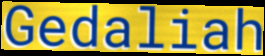
Gedaliah